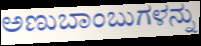
ಅಣುಬಾಂಬುಗಳನ್ನು